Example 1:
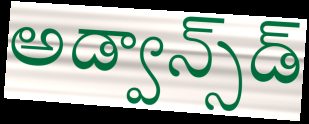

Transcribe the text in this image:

అడ్వాన్స్‌డ్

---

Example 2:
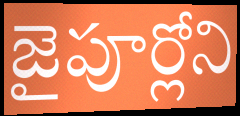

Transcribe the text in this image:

జైపూర్లోని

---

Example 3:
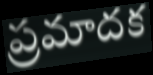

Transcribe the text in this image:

ప్రమాదక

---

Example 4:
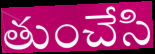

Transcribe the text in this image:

తుంచేసి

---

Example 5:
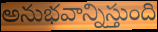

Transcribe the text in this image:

అనుభవాన్నిస్తుంది